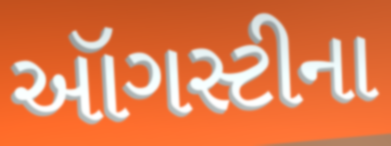
ઑગસ્ટીના